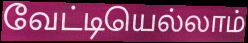
வேட்டியெல்லாம்